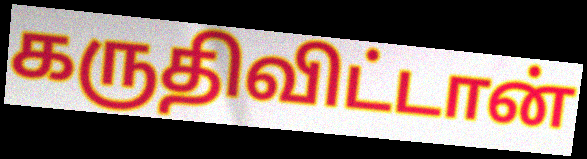
கருதிவிட்டான்